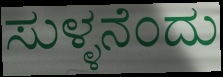
ಸುಳ್ಳನೆಂದು